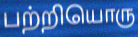
பற்றியொரு